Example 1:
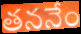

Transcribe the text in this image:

తననేం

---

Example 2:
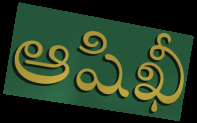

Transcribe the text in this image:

ఆషిఖీ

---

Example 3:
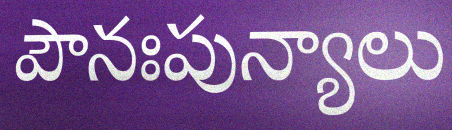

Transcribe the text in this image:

పౌనఃపున్యాలు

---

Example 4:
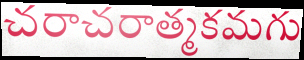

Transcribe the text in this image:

చరాచరాత్మకమగు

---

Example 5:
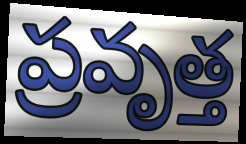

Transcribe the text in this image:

ప్రవృత్త